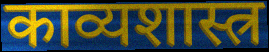
काव्यशास्त्र